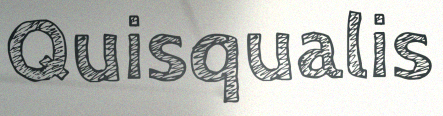
Quisqualis